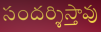
సందర్శిస్తావు